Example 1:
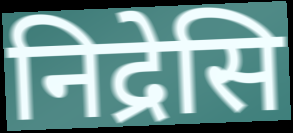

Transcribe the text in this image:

निद्रेसि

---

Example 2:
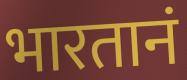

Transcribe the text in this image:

भारतानं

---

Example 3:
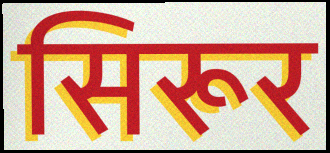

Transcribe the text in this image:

सिरूर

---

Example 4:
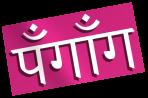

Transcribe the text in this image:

पँगाँग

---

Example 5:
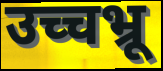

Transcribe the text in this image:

उच्चभ्रू